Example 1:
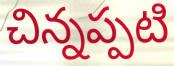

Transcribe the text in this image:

చిన్నప్పటి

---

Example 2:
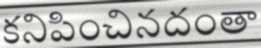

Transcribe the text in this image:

కనిపించినదంతా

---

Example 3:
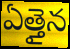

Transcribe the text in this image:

ఏత్తైన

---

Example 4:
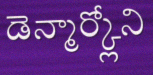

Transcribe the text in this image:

డెన్మార్క్లోని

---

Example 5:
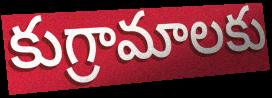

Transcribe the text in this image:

కుగ్రామాలకు